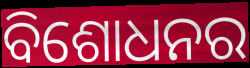
ବିଶୋଧନର